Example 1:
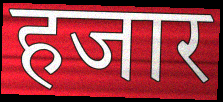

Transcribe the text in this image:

हजार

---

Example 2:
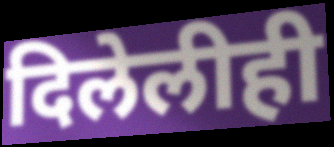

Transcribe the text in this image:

दिलेलीही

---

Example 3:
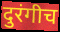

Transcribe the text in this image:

दुरंगीच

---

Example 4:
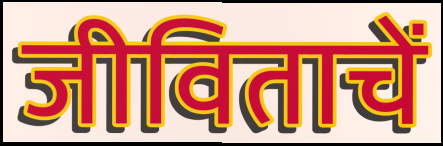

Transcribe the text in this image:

जीविताचें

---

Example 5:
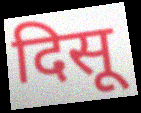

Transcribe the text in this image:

दिसू